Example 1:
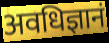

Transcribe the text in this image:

अवधिज्ञानं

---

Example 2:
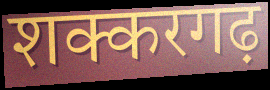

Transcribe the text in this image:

शक्करगढ़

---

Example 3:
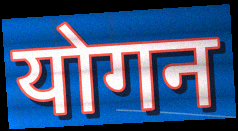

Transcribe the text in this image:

योगन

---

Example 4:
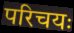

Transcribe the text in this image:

परिचयः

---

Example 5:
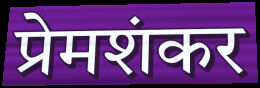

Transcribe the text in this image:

प्रेमशंकर